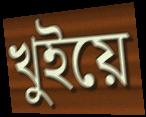
খুইয়ে